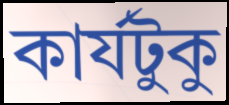
কার্যটুকু